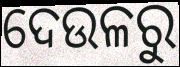
ଦେଉଳରୁ